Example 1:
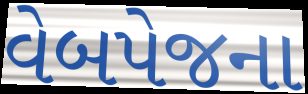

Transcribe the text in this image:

વેબપેજના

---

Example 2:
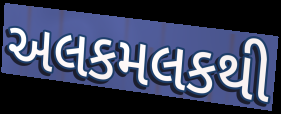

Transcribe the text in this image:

અલકમલકથી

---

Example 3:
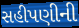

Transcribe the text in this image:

સહીપણીની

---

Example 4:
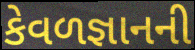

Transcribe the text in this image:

કેવળજ્ઞાનની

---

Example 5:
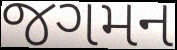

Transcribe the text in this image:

જગમન